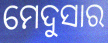
ମେଦୁସାର